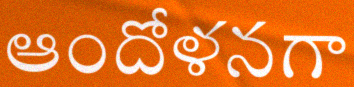
ఆందోళనగా